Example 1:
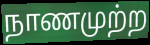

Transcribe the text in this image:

நாணமுற்ற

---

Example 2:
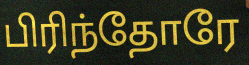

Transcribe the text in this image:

பிரிந்தோரே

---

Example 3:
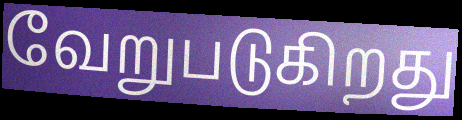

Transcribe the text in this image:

வேறுபடுகிறது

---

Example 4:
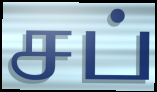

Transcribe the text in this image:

சப்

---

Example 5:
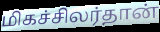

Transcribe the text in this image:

மிகச்சிலர்தான்